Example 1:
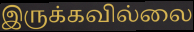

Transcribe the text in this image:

இருக்கவில்லை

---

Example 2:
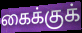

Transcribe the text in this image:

கைக்குக்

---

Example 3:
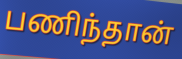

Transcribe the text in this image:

பணிந்தான்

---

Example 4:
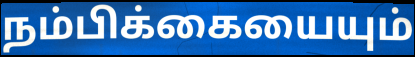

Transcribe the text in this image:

நம்பிக்கையையும்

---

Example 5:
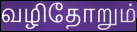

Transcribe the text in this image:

வழிதோறும்